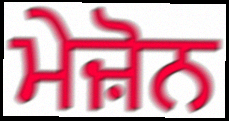
ਮੇਜ਼ੋਨ